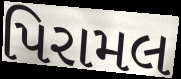
પિરામલ